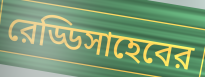
রেড্ডিসাহেবের